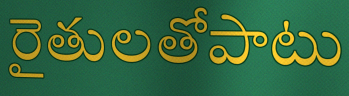
రైతులతోపాటు